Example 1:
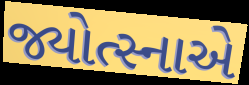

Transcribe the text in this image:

જ્યોત્સ્નાએ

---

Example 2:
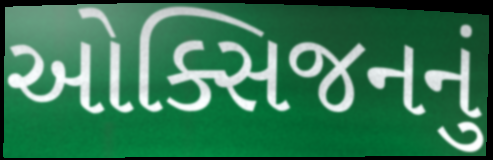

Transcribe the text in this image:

ઓક્સિજનનું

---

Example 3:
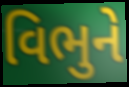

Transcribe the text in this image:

વિભુને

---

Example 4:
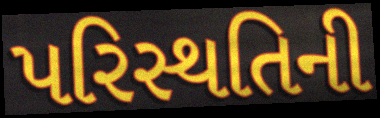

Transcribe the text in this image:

પરિસ્થતિની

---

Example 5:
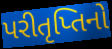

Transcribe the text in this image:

પરીતૃપ્તિનો